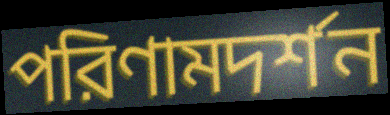
পরিণামদর্শন